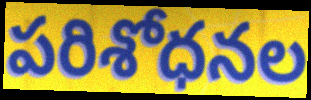
పరిశోధనల